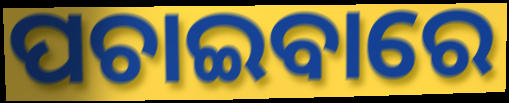
ପଚାଇବାରେ